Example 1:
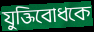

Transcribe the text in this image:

যুক্তিবোধকে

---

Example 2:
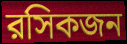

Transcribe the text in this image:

রসিকজন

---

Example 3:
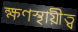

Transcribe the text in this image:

ক্ষণস্থায়ীত্ব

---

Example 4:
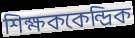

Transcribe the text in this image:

শিক্ষককেন্দ্রিক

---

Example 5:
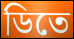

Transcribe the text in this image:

ডিতে